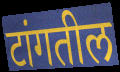
टांगतील